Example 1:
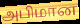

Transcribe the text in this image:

அபிமான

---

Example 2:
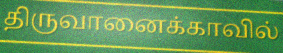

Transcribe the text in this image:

திருவானைக்காவில்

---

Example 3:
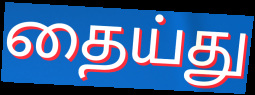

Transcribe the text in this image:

தைய்து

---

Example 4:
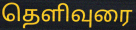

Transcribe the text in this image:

தெளிவுரை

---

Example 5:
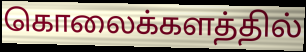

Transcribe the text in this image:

கொலைக்களத்தில்